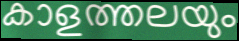
കാളത്തലയും